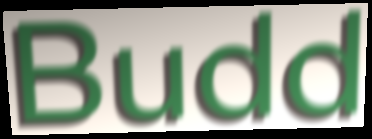
Budd